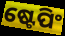
ଷ୍ଟେପିଂ